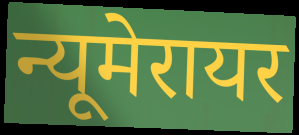
न्यूमेरायर